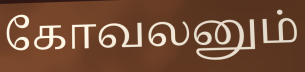
கோவலனும்